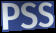
PSS